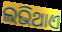
ଲଭିଥାଏ